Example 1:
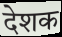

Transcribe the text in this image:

देशक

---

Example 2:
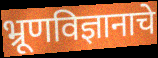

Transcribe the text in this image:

भ्रूणविज्ञानाचे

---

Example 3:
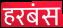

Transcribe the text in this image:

हरबंस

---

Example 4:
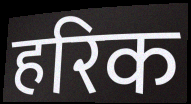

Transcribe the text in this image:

हरिक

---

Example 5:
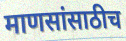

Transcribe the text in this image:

माणसांसाठीच